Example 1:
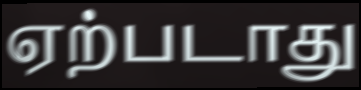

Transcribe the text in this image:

ஏற்படாது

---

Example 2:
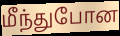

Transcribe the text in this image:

மீந்துபோன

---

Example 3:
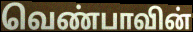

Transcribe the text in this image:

வெண்பாவின்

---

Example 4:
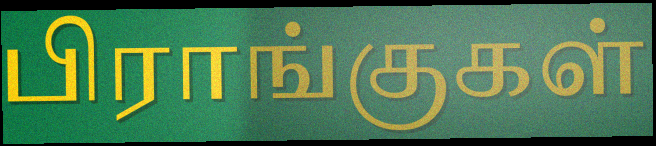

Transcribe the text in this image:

பிராங்குகள்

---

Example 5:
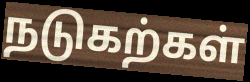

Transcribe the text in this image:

நடுகற்கள்